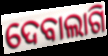
ଦେବାଲାଗି